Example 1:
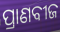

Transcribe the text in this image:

ପ୍ରାଣବୀଜ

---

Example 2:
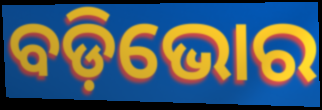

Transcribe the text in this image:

ବଡ଼ିଭୋର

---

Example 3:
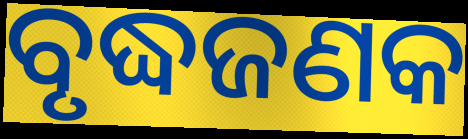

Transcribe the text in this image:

ବୃଦ୍ଧଜଣକ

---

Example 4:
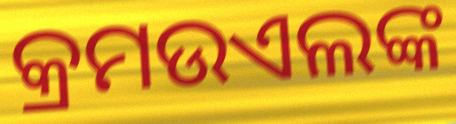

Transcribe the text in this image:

କ୍ରମଉଏଲଙ୍କ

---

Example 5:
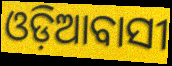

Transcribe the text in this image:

ଓଡ଼ିଆବାସୀ